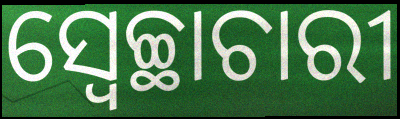
ସ୍ଵେଚ୍ଛାଚାରୀ